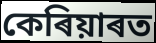
কেৰিয়াৰত